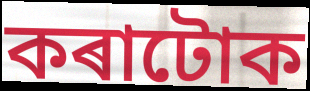
কৰাটোক